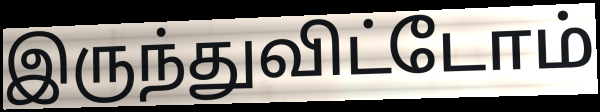
இருந்துவிட்டோம்